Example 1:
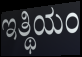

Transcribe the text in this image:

ಇತ್ಥಿಯಂ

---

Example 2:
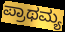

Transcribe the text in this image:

ಪ್ರಾಥಮ್ಯ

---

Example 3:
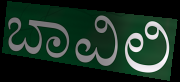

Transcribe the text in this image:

ಬಾವಿಲಿ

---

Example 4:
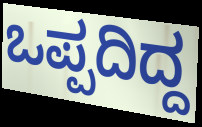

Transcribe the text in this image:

ಒಪ್ಪದಿದ್ದ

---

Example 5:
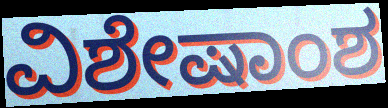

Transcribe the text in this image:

ವಿಶೇಷಾಂಶ